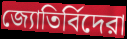
জ্যোতির্বিদেরা